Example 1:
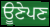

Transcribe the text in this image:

ਊਣੇਪਣ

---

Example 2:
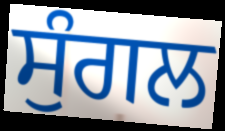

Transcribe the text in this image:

ਸੁੰਗਲ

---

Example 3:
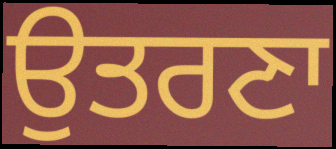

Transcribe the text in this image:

ਉਤਰਣਾ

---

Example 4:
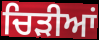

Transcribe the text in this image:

ਚਿੜੀਆਂ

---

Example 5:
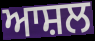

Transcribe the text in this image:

ਆਸ਼ਲ